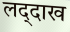
लद्‌दाख